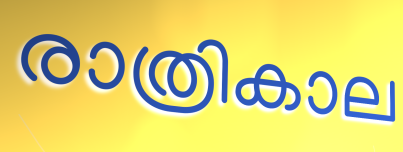
രാത്രികാല